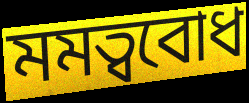
মমত্ববোধ